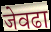
जेवढा